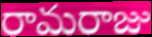
రామరాజు